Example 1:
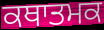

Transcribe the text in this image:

ਕਥਾਤਮਕ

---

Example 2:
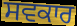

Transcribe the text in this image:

ਸਵਕਾਰ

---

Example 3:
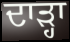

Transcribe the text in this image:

ਦਾੜ੍ਹਾ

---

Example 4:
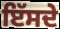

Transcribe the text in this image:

ਇੱਸਦੇ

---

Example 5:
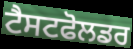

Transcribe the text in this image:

ਟੈਸਟਫੋਲਡਰ